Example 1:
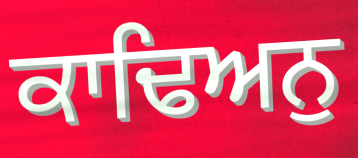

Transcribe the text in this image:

ਕਾਢਿਅਨੁ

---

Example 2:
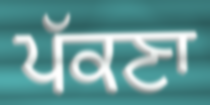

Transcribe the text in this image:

ਪੱਕਣਾ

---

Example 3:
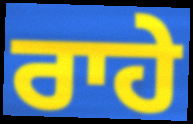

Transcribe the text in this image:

ਰਾਹੇ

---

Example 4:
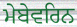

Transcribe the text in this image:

ਮੇਬੇਵਰਿਨ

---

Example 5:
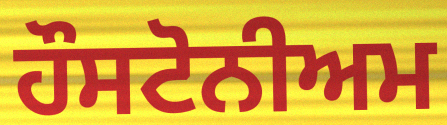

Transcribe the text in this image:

ਹੌਸਟੋਨੀਅਮ